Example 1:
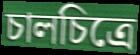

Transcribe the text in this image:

চালচিত্রে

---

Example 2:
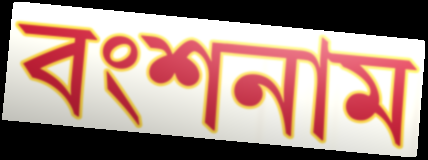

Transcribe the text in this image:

বংশনাম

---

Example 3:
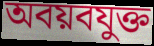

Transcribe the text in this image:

অবয়বযুক্ত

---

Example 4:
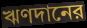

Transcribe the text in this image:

ঋণদানের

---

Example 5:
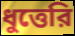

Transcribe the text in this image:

ধুত্তেরি